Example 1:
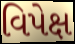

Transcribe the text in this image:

વિપેક્ષ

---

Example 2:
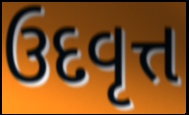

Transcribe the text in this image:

ઉદવૃત્ત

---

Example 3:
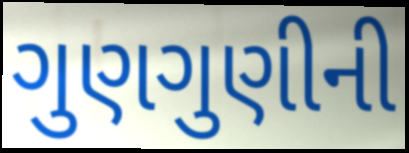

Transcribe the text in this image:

ગુણગુણીની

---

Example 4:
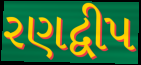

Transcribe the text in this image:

રણદ્વીપ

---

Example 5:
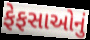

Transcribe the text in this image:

ફેફસાઓનું